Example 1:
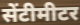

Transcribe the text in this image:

सेंटीमीटर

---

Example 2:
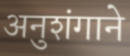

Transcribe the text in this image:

अनुशंगाने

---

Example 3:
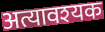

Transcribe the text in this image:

अत्यावश्‍यक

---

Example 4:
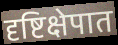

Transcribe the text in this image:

दृष्टिक्षेपात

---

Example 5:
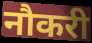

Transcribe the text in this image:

नौकरी